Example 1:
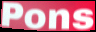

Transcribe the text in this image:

Pons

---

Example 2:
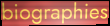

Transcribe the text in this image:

biographies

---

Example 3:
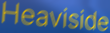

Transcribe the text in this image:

Heaviside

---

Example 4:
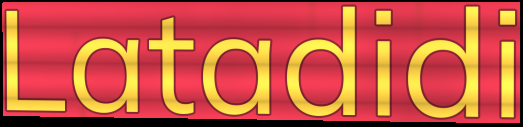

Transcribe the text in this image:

Latadidi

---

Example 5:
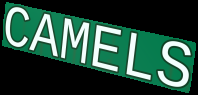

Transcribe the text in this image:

CAMELS